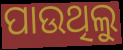
ପାଉଥିଲୁ